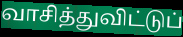
வாசித்துவிட்டுப்